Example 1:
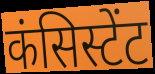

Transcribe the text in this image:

कंसिस्टेंट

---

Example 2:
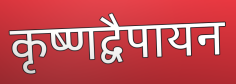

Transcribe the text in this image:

कृष्णद्वैपायन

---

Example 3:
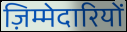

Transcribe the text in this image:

ज़िम्मेदारियों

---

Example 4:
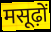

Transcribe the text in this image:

मसूढ़ों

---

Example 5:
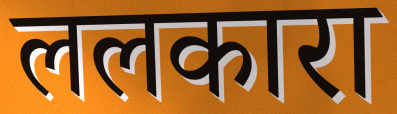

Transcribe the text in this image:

ललकारा